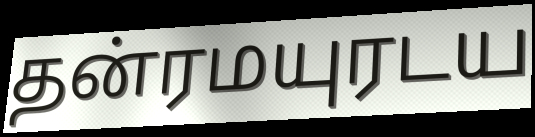
தன்ரமயுரடய